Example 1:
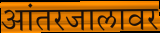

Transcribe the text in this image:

आंतरजालावर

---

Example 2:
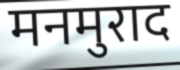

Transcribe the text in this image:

मनमुराद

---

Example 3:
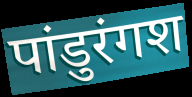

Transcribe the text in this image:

पांडुरंगश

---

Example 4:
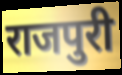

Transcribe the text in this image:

राजपुरी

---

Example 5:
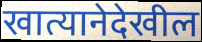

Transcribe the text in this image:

खात्यानेदेखील